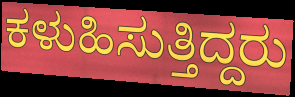
ಕಳುಹಿಸುತ್ತಿದ್ದರು